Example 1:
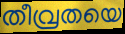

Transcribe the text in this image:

തീവ്രതയെ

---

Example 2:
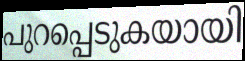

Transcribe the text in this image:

പുറപ്പെടുകയായി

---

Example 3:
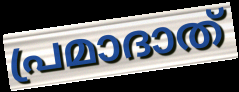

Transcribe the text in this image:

പ്രമാദാത്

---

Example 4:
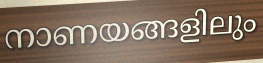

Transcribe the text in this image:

നാണയങ്ങളിലും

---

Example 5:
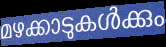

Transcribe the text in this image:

മഴക്കാടുകൾക്കും